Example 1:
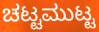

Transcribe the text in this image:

ಚಟ್ಟಮುಟ್ಟ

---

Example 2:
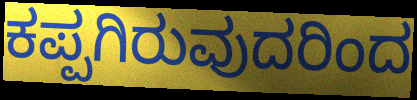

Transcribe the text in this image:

ಕಪ್ಪಗಿರುವುದರಿಂದ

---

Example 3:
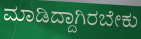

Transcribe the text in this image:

ಮಾಡಿದ್ದಾಗಿರಬೇಕು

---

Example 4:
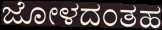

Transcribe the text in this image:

ಜೋಳದಂತಹ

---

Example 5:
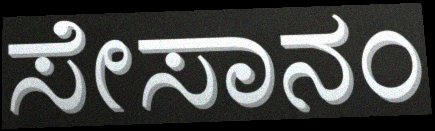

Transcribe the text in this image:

ಸೇಸಾನಂ